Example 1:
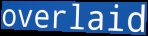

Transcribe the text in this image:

overlaid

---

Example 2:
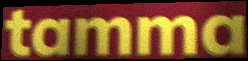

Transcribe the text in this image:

tamma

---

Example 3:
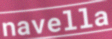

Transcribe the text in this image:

navella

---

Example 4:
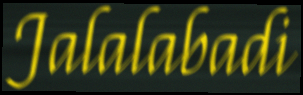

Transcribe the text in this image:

Jalalabadi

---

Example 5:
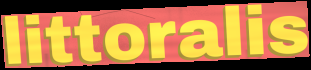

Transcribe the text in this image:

littoralis